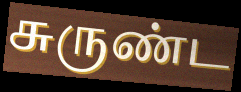
சுருண்ட